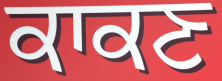
ਕਾਕਣ